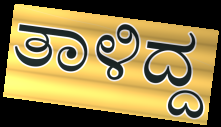
ತಾಳಿದ್ದ